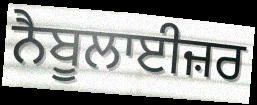
ਨੈਬੂਲਾਈਜ਼ਰ